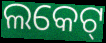
ଲକେଟ୍